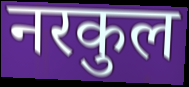
नरकुल